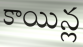
కాయిన్ల